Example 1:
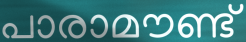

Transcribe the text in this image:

പാരാമൗണ്ട്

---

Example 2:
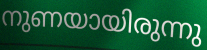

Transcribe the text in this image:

നുണയായിരുന്നു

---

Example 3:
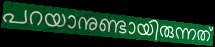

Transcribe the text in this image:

പറയാനുണ്ടായിരുന്നത്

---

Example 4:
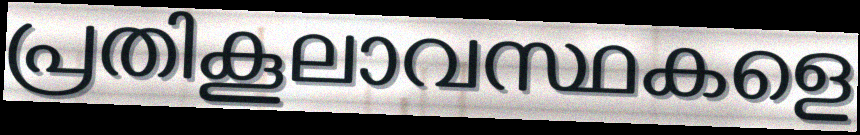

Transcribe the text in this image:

പ്രതികൂലാവസ്ഥകളെ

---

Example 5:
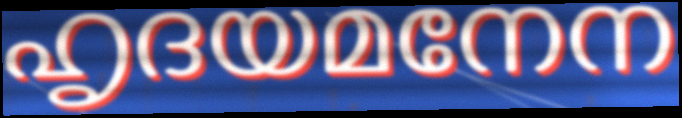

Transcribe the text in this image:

ഹൃദയമനേന